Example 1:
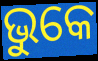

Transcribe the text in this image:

ଭୁକେ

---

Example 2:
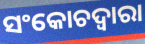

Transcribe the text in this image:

ସଂକୋଚଦ୍ୱାରା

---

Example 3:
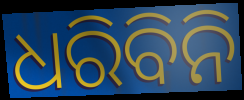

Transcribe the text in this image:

ଧରିବିନି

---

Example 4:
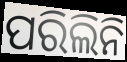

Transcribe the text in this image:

ପରିଲିନି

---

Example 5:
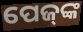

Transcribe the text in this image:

ପେଜ୍‌ଙ୍କ